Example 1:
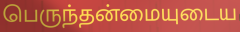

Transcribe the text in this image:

பெருந்தன்மையுடைய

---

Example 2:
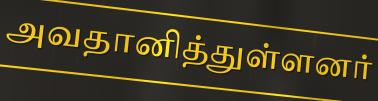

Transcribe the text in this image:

அவதானித்துள்ளனர்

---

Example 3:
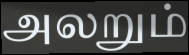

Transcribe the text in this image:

அலறும்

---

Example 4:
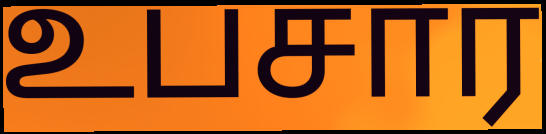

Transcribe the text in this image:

உபசார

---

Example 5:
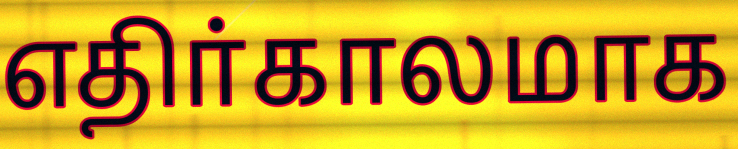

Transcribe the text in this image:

எதிர்காலமாக